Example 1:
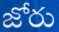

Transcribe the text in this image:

జోరు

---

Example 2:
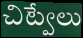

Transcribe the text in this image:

చిట్వేలు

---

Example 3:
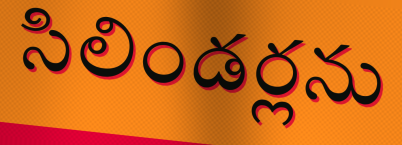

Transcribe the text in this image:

సిలిండర్లను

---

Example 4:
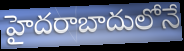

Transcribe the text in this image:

హైదరాబాదులోనే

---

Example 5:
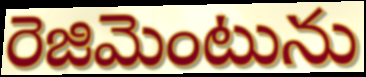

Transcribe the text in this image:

రెజిమెంటును